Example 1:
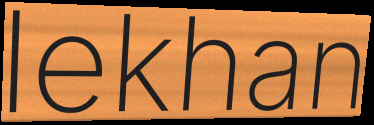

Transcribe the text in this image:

lekhan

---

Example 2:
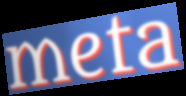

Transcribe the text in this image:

meta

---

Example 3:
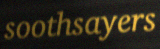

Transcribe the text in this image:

soothsayers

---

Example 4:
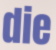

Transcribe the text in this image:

die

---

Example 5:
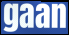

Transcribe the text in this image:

gaan